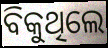
ବିକୁଥିଲେ